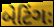
બેટિંગઃ